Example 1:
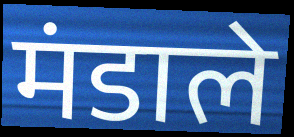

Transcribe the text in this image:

मंडाले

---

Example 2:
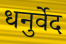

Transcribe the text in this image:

धनुर्वेद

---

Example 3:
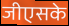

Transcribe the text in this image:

जीएसके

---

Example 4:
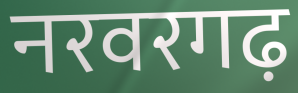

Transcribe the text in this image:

नरवरगढ़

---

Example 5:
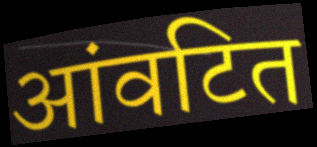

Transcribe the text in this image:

आंवटित